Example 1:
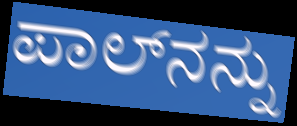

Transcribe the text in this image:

ಪಾಲ್‍ನನ್ನು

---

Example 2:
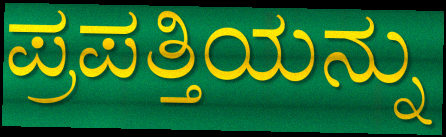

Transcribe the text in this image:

ಪ್ರಪತ್ತಿಯನ್ನು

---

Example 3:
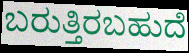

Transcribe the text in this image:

ಬರುತ್ತಿರಬಹುದೆ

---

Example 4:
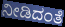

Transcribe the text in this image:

ನೀಡಿದಂತೆ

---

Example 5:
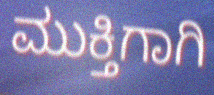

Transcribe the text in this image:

ಮುಕ್ತಿಗಾಗಿ